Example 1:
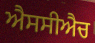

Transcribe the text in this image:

ਐਸਸੀਐਚ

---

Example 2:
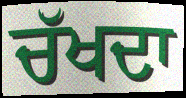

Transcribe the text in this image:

ਚੱਖਦਾ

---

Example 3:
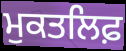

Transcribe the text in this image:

ਮੁਕਤਲਿਫ਼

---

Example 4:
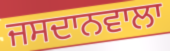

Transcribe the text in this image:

ਜਸਦਾਨਵਾਲਾ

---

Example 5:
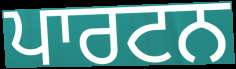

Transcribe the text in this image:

ਪਾਰਟਨ